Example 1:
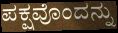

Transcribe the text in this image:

ಪಕ್ಷವೊಂದನ್ನು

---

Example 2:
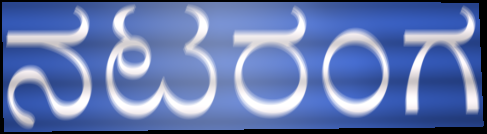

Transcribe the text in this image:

ನಟರಂಗ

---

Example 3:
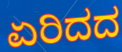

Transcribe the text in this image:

ಏರಿದದ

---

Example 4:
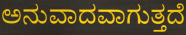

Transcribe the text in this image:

ಅನುವಾದವಾಗುತ್ತದೆ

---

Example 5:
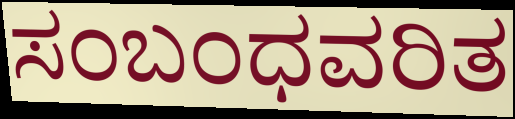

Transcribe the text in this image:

ಸಂಬಂಧವರಿತ